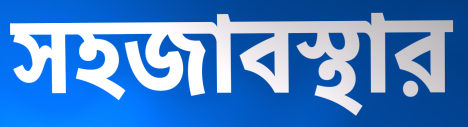
সহজাবস্থার